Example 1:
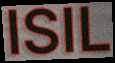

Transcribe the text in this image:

ISIL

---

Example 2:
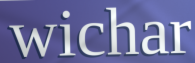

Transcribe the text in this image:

wichar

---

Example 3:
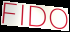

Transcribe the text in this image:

FIDO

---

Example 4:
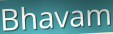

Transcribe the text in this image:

Bhavam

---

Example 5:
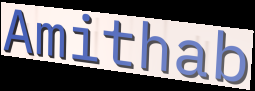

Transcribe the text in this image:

Amithab